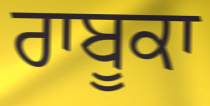
ਰਾਬੂਕਾ